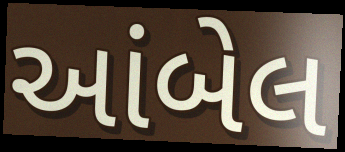
આંબેલ